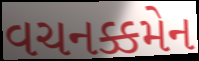
વચનક્કમેન